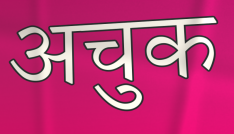
अचुक